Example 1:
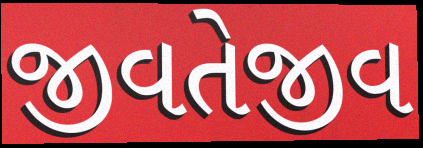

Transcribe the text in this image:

જીવતેજીવ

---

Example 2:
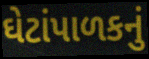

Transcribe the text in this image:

ઘેટાંપાળકનું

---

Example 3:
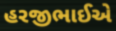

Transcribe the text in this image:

હરજીભાઈએ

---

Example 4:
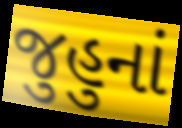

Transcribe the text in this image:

જુહુનાં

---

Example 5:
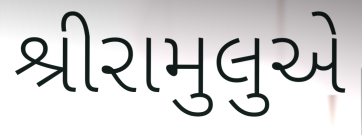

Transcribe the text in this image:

શ્રીરામુલુએ